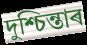
দুশ্চিন্তাৰ